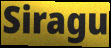
Siragu